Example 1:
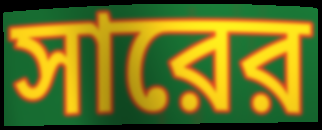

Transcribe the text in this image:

সারের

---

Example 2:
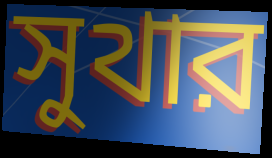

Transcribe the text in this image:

সুথার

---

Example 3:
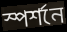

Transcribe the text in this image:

স্পর্শনে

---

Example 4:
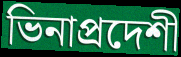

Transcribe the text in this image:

ভিনাপ্রদেশী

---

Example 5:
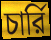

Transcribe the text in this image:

চার্রি